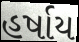
હર્ષાય